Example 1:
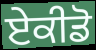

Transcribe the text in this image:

ਏਕੀਡੋ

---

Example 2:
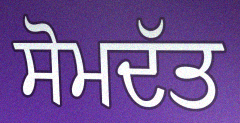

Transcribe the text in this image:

ਸੋਮਦੱਤ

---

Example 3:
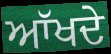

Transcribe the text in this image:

ਆੱਖਦੇ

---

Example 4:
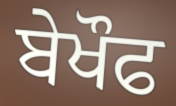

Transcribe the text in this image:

ਬੇਖੌਫ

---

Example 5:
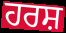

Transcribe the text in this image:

ਹਰਸ਼